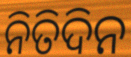
ନିତିଦିନ